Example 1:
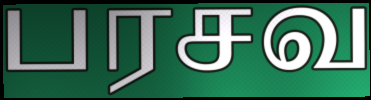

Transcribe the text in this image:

பரசவ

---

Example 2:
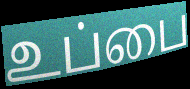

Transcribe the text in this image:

உப்பை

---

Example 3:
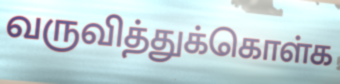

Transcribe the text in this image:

வருவித்துக்கொள்க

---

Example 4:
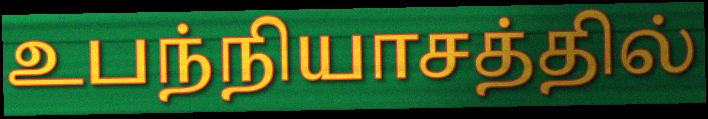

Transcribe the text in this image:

உபந்நியாசத்தில்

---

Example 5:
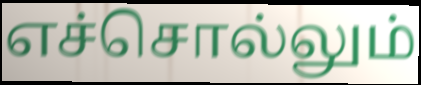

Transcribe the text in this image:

எச்சொல்லும்